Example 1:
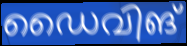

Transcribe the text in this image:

ഡൈവിങ്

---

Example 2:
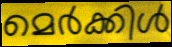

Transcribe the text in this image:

മെർക്കിൾ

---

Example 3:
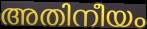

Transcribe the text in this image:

അതിനീയം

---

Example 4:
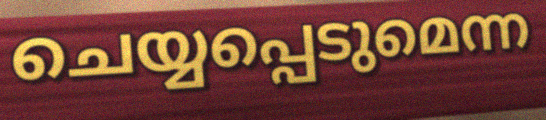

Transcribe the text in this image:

ചെയ്യപ്പെടുമെന്ന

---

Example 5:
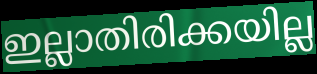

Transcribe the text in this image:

ഇല്ലാതിരിക്കയില്ല